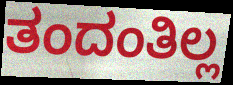
ತಂದಂತಿಲ್ಲ